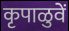
कृपाळुवें